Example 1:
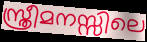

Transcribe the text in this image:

സ്ത്രീമനസ്സിലെ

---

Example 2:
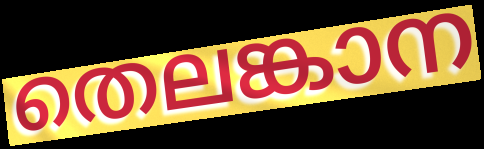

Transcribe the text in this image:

തെലങ്കാന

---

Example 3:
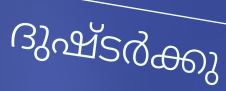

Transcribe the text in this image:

ദുഷ്ടർക്കു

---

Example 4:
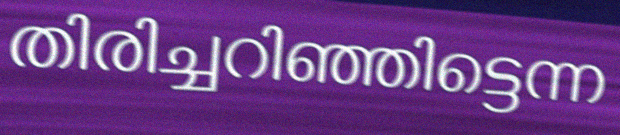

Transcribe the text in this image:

തിരിച്ചറിഞ്ഞിട്ടെന്ന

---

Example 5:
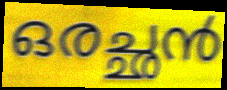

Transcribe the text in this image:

ഒരച്ഛൻ